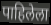
पाहिलेला